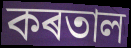
কৰতাল